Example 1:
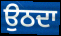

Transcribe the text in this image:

ਉਠਦਾ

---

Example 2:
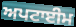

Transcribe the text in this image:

ਅਪਟਾਈਮ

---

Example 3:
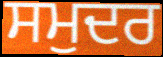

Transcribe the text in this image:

ਸਮੁਦਰ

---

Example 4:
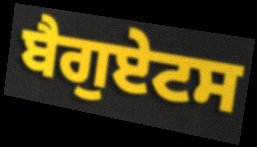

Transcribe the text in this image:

ਬੈਗੁਏਟਸ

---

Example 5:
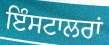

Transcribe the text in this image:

ਇੰਸਟਾਲਰਾਂ